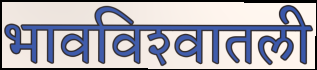
भावविश्वातली